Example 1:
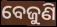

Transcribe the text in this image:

ବେଜୁଣି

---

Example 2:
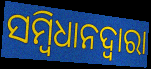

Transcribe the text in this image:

ସମ୍ବିଧାନଦ୍ବାରା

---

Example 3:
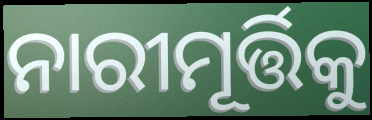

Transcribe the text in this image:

ନାରୀମୂର୍ତ୍ତିକୁ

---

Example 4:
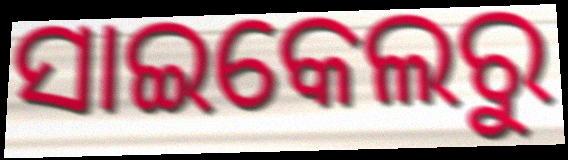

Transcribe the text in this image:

ସାଇକେଲରୁ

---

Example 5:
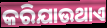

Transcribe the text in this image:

କରିଯାଉଥାଏ